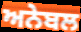
ਅਨੇਬਲ